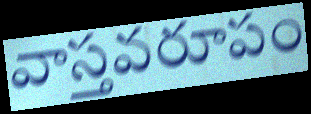
వాస్తవరూపం